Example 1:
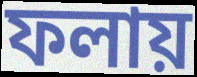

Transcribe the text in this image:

ফলায়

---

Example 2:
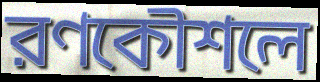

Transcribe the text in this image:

রণকৌশলে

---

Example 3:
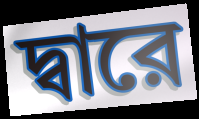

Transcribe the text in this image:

দ্বারে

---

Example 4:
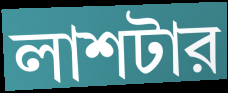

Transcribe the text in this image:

লাশটার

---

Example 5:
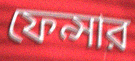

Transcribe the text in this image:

ফেন্সার